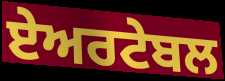
ਏਅਰਟੇਬਲ